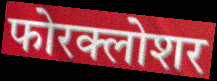
फोरक्लोशर